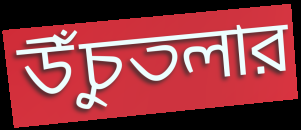
উঁচুতলার